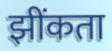
झींकता